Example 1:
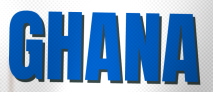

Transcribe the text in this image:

GHANA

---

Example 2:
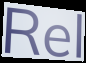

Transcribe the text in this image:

Rel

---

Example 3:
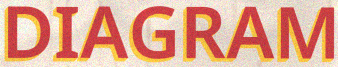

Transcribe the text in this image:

DIAGRAM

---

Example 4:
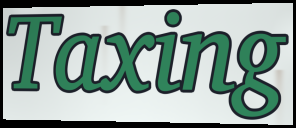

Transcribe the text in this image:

Taxing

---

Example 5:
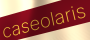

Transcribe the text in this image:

caseolaris